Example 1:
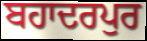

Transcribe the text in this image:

ਬਹਾਦਰਪੁਰ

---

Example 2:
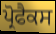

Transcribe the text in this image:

ਪ੍ਰੋਫੈਕਸ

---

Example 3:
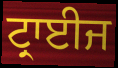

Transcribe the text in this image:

ਟ੍ਰਾਈਜ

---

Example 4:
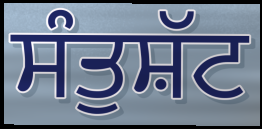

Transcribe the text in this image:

ਸੰਤੁਸ਼ੱਟ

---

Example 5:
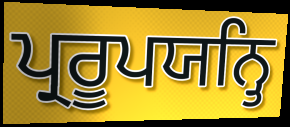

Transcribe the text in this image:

ਪ੍ਰਰੂਪਯਨ੍ਤਿ